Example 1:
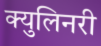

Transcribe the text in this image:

क्युलिनरी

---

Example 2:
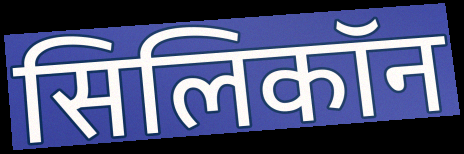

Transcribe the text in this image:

सिलिकॉन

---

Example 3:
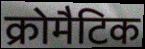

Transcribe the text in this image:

क्रोमैटिक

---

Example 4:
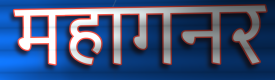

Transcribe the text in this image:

महागनर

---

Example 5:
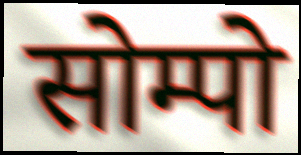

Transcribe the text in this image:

सोम्पो